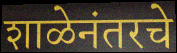
शाळेनंतरचे